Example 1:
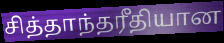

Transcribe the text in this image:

சித்தாந்தரீதியான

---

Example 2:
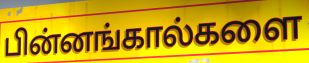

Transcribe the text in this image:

பின்னங்கால்களை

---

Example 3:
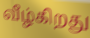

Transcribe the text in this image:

வீழ்கிறது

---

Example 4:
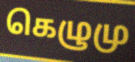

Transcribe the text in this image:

கெழுமு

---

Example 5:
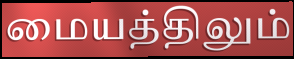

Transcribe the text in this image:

மையத்திலும்